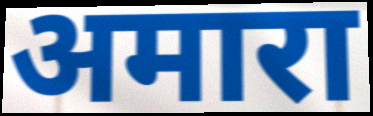
अमारा